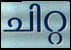
ചിറ്റ